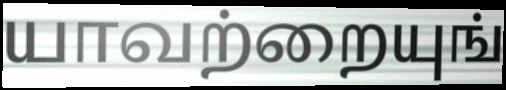
யாவற்றையுங்